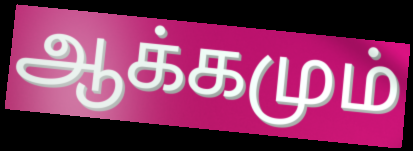
ஆக்கமும்